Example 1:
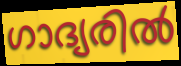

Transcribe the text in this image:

ഗാദ്യരിൽ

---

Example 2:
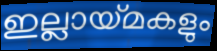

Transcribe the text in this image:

ഇല്ലായ്മകളും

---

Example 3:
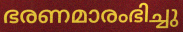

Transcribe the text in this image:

ഭരണമാരംഭിച്ചു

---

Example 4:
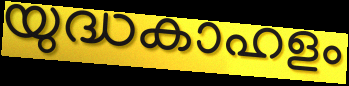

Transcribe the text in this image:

യുദ്ധകാഹളം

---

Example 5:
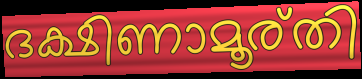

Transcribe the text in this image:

ദക്ഷിണാമൂര്തി